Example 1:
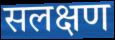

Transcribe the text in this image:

सलक्षण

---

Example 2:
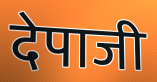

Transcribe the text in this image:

देपाजी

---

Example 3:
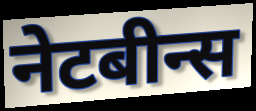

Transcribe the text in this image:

नेटबीन्स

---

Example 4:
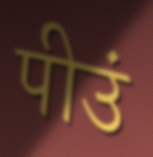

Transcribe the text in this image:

पीउं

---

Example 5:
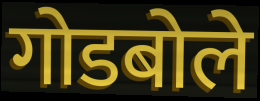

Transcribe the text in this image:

गोडबोले